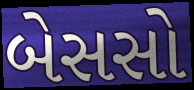
બેસસો